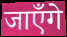
जाएँगे